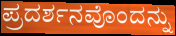
ಪ್ರದರ್ಶನವೊಂದನ್ನು